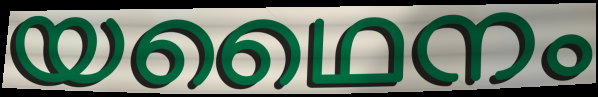
യഥൈനം